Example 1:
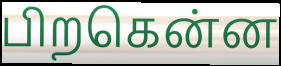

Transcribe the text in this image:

பிறகென்ன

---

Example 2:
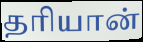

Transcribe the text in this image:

தரியான்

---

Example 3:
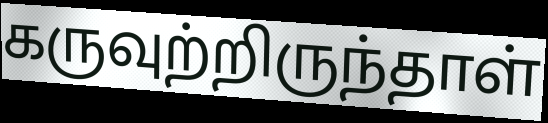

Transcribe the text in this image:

கருவுற்றிருந்தாள்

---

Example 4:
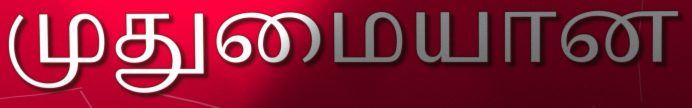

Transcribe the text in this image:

முதுமையான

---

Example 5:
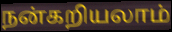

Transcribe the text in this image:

நன்கறியலாம்